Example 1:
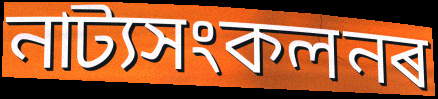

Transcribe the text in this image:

নাট্যসংকলনৰ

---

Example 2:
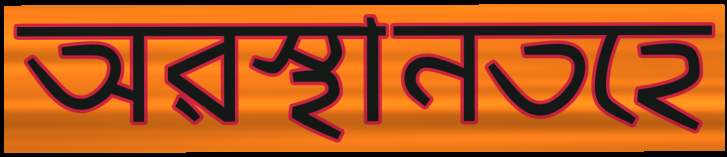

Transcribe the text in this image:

অৱস্থানতহে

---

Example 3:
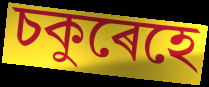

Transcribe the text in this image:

চকুৰেহে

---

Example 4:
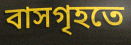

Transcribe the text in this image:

বাসগৃহতে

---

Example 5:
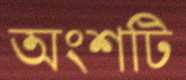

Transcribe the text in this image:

অংশটি